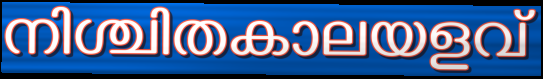
നിശ്ചിതകാലയളവ്